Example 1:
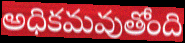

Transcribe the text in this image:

అధికమవుతోంది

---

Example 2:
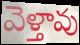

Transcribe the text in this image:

వెళ్తావు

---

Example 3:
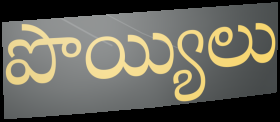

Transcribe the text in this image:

పొయ్యిలు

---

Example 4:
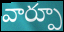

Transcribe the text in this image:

వార్పూ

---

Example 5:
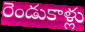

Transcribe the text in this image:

రెండుకాళ్లు